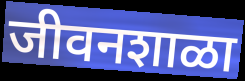
जीवनशाळा